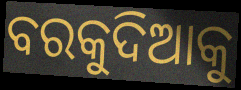
ବରକୁଦିଆକୁ